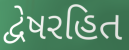
દ્વેષરહિત